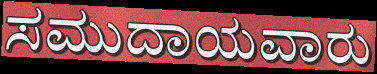
ಸಮುದಾಯವಾರು